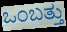
ಒಂಬತ್ತು